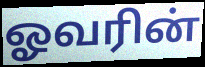
ஓவரின்